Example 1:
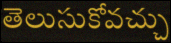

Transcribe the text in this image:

తెలుసుకోవచ్చు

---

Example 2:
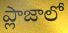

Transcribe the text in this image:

ప్లాజాలో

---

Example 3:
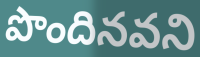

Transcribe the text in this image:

పొందినవని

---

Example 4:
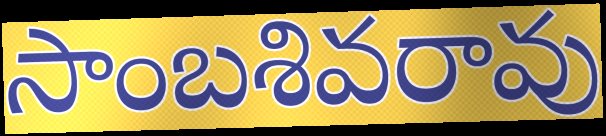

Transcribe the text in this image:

సాంబశివరావు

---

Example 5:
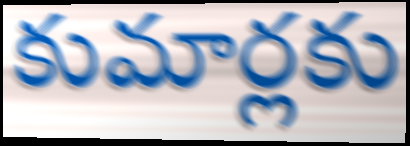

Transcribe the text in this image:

కుమార్లకు